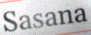
Sasana